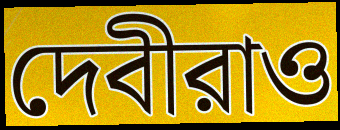
দেবীরাও